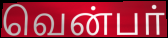
வென்பர்